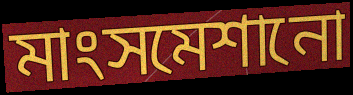
মাংসমেশানো